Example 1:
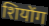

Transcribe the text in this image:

शियोंग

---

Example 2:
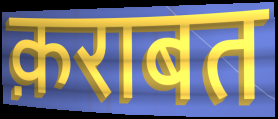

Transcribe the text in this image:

क़राबत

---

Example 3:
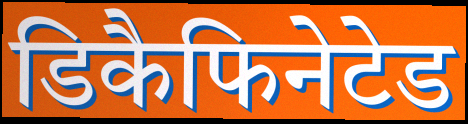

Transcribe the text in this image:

डिकैफिनेटेड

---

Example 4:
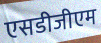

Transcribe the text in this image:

एसडीजीएम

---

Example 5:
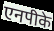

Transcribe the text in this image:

एनपीके